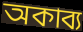
অকাব্য